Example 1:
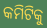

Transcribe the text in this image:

କମିଟିକୁ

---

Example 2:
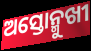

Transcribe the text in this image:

ଅସ୍ତୋନ୍ମୁଖୀ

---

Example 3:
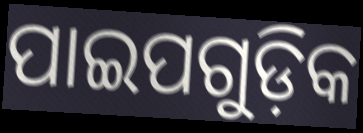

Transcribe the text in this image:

ପାଇପଗୁଡ଼ିକ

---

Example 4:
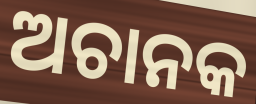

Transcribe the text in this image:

ଅଚାନକ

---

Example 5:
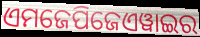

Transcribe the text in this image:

ଏମଜେପିଜେଏୱାଇର